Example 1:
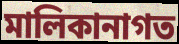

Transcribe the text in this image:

মালিকানাগত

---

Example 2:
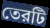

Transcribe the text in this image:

তেরটি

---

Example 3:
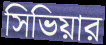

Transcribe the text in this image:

সিভিয়ার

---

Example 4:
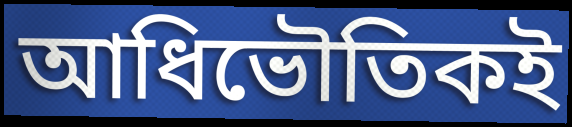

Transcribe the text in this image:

আধিভৌতিকই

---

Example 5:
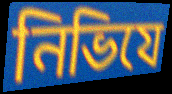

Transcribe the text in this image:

নিভিযে